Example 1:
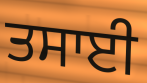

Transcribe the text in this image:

ਤਸਾਈ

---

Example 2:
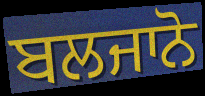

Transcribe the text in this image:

ਬਲਜਾਨੋ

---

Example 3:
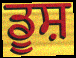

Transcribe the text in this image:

ਡੂਸ਼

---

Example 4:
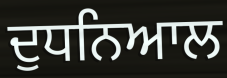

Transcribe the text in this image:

ਦੁਧਨਿਆਲ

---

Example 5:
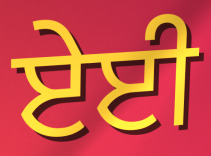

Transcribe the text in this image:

ਏਈ